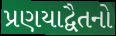
પ્રણયાદ્વૈતનો